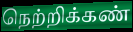
நெற்றிக்கண்